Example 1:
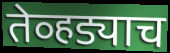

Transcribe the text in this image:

तेव्हड्याच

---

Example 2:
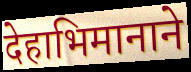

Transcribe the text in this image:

देहाभिमानाने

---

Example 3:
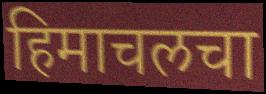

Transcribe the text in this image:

हिमाचलचा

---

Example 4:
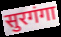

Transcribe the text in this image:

सुरगंगा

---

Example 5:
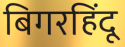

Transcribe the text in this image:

बिगरहिंदू